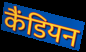
कैंडियन